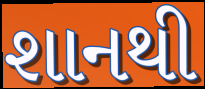
શાનથી